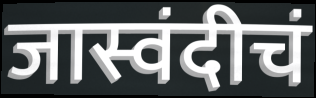
जास्वंदीचं